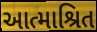
આત્માશ્રિત